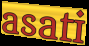
asati